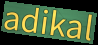
adikal